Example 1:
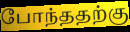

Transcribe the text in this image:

போந்ததற்கு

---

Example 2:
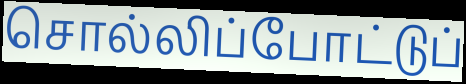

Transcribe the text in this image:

சொல்லிப்போட்டுப்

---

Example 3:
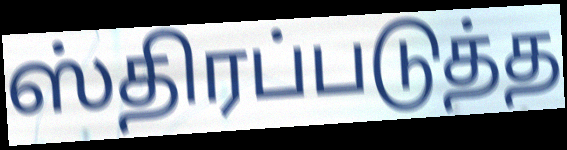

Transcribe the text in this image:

ஸ்திரப்படுத்த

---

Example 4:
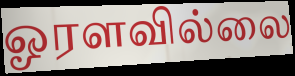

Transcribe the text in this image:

ஓரளவில்லை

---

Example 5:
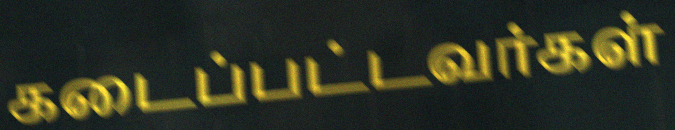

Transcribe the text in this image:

கடைப்பட்டவர்கள்